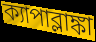
ক্যাপাব্লাঙ্কা